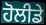
ਹੋਲੀਡੇ